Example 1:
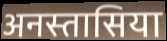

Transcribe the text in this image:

अनस्तासिया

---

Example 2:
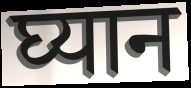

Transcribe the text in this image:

घ्यान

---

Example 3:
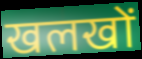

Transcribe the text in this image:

खलखों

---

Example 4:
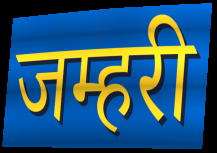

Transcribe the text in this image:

जम्हरी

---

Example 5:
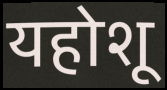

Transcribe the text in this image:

यहोशू